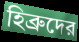
হিব্রুদের